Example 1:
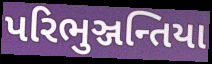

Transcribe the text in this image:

પરિભુઞ્જન્તિયા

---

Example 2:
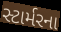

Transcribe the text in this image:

સ્ટાર્મરના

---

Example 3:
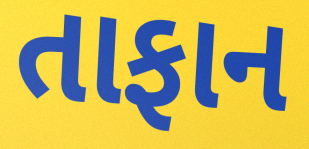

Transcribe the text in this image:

તાફાન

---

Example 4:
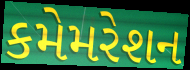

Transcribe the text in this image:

કમેમરેશન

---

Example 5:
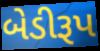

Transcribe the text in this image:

બેડીરૂપ